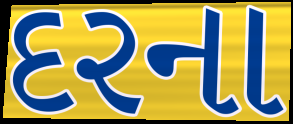
દરના